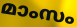
മാംസം